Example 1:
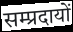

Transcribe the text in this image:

सम्प्रदायों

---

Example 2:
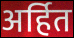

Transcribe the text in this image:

अर्हित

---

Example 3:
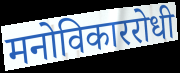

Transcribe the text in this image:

मनोविकाररोधी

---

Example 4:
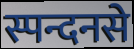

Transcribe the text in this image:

स्पन्दनसे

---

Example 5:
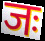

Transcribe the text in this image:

जः